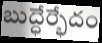
బుద్ధేర్భేదం